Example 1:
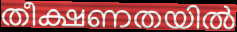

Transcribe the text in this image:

തീക്ഷണതയിൽ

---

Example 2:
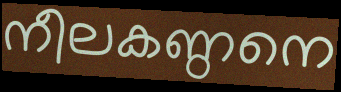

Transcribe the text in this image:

നീലകണ്ഠനെ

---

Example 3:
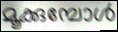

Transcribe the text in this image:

മൂക്കുമ്പോൾ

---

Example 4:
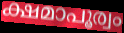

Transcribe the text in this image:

ക്ഷമാപൂര്വം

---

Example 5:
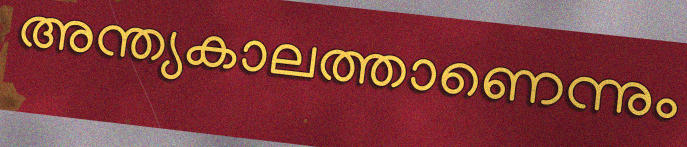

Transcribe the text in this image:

അന്ത്യകാലത്താണെന്നും